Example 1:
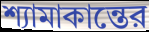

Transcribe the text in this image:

শ্যামাকান্তের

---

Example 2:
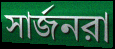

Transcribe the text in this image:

সার্জনরা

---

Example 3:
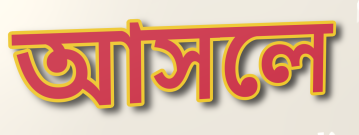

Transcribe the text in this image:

আসলে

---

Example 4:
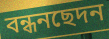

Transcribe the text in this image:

বন্ধনছেদন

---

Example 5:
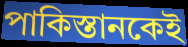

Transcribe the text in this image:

পাকিস্তানকেই